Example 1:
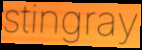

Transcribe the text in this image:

stingray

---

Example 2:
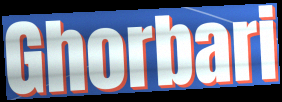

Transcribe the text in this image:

Ghorbari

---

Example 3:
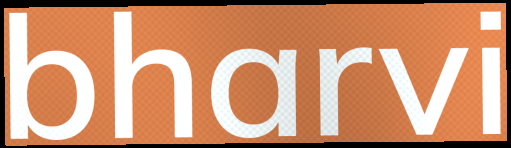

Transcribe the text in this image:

bharvi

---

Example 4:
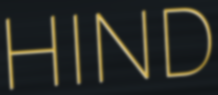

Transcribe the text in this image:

HIND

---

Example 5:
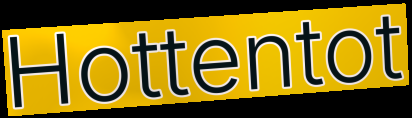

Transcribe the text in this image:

Hottentot